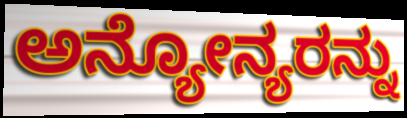
ಅನ್ಯೋನ್ಯರನ್ನು